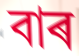
বাৰ